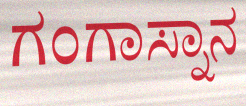
ಗಂಗಾಸ್ನಾನ